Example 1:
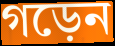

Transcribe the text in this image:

গড়েন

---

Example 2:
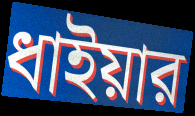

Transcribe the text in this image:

ধাইয়ার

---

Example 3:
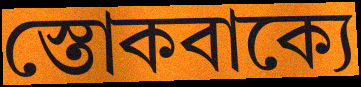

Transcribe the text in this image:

স্তোকবাক্যে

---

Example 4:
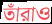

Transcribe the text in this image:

তাঁরাও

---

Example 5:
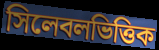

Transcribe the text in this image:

সিলেবলভিত্তিক